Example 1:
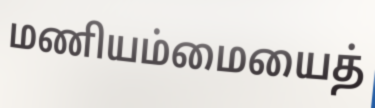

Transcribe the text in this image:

மணியம்மையைத்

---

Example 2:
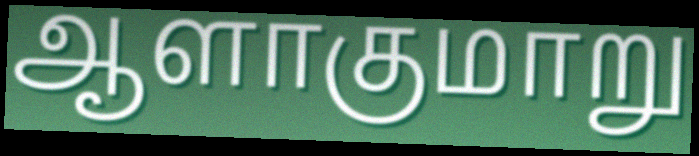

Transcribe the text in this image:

ஆளாகுமாறு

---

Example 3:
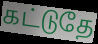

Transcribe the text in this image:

கட்டுதே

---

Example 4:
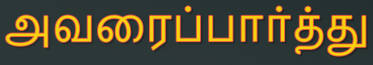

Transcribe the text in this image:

அவரைப்பார்த்து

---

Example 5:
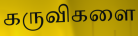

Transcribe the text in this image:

கருவிகளை